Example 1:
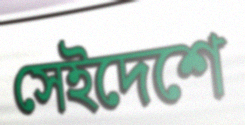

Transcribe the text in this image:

সেইদেশে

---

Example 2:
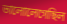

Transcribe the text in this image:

ভালোলেগেছিল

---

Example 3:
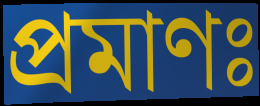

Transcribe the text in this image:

প্রমাণঃ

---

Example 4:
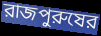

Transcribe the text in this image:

রাজপুরুষের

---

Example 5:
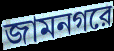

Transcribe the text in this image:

জামনগরে